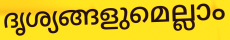
ദൃശ്യങ്ങളുമെല്ലാം